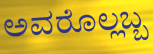
ಅವರೊಲ್ಲಬ್ಬ